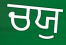
ਚਯੁ